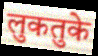
लुकतुके